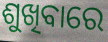
ଶୁଖିବାରେ